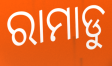
ରାମାଡୁ